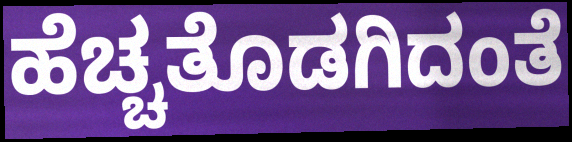
ಹೆಚ್ಚತೊಡಗಿದಂತೆ